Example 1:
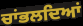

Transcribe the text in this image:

ਚਾਂਭਲਦਿਆਂ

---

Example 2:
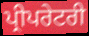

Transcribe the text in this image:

ਪ੍ਰੀਪਰੇਟਰੀ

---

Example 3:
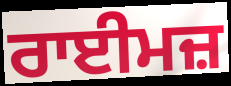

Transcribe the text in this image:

ਰਾਈਮਜ਼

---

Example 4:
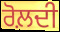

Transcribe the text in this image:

ਰੋਲ਼ਦੀ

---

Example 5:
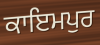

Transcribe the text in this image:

ਕਾਇਮਪੁਰ